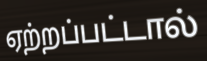
ஏற்றப்பட்டால்